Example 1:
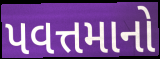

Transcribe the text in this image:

પવત્તમાનો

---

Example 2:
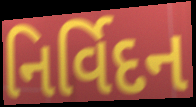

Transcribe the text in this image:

નિર્વિદન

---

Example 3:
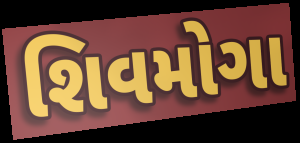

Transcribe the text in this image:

શિવમોગા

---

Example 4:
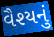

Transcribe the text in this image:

વૈશ્યનું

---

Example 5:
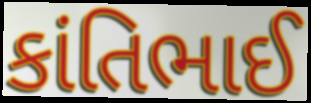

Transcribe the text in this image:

કાંતિભાઈ